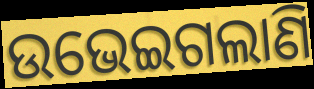
ଉଭେଇଗଲାଣି